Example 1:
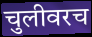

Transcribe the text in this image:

चुलीवरच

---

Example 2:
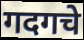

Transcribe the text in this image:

गदगचे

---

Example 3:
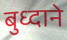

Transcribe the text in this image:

बुध्दाने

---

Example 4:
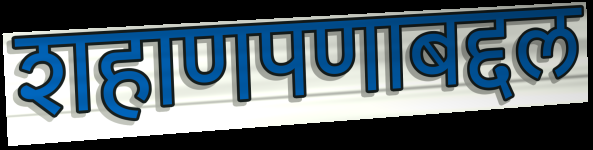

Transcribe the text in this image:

शहाणपणाबद्दल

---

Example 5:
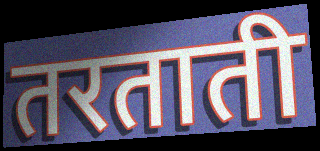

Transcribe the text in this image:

तरताती